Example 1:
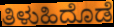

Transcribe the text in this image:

ತಿಳುಹಿದೊಡೆ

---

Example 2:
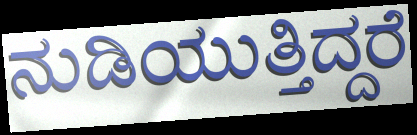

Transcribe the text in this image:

ನುಡಿಯುತ್ತಿದ್ದರೆ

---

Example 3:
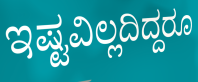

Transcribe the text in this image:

ಇಷ್ಟವಿಲ್ಲದಿದ್ದರೂ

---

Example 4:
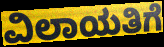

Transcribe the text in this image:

ವಿಲಾಯತಿಗೆ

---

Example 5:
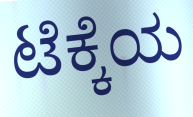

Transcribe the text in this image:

ಟೆಕ್ಕೆಯ